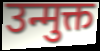
उन्मुक्त